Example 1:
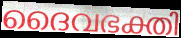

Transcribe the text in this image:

ദൈവഭക്തി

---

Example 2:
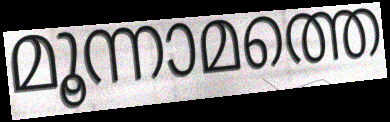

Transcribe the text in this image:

മൂന്നാമത്തെ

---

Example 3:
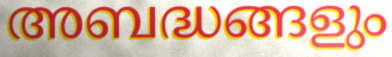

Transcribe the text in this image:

അബദ്ധങ്ങളും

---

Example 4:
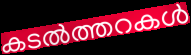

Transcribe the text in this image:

കടൽത്തറകൾ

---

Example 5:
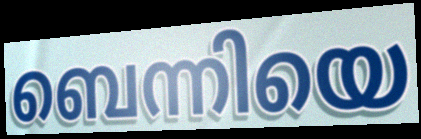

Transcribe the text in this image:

ബെന്നിയെ